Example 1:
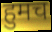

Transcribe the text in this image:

हुमच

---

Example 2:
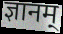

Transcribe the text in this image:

ज्ञानम्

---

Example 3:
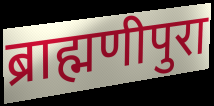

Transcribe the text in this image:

ब्राह्मणीपुरा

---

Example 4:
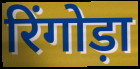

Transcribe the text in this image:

रिंगोड़ा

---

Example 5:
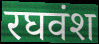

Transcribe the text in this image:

रघवंश